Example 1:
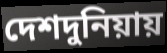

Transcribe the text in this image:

দেশদুনিয়ায়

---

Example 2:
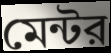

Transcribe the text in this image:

মেন্টর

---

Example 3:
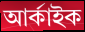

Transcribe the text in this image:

আর্কাইক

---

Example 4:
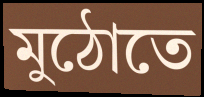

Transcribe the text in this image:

মুঠোতে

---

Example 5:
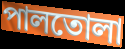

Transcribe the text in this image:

পালতোলা